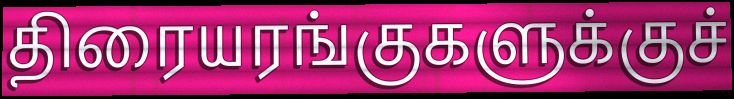
திரையரங்குகளுக்குச்